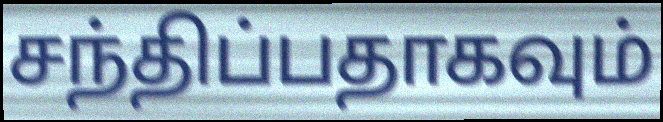
சந்திப்பதாகவும்